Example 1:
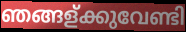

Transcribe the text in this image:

ഞങ്ങള്ക്കുവേണ്ടി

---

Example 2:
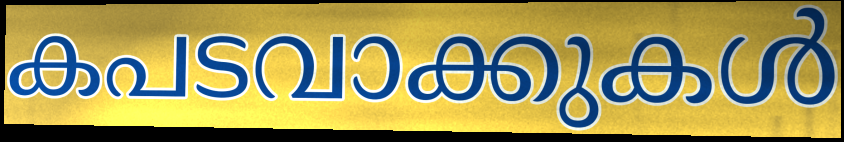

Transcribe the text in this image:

കപടവാക്കുകൾ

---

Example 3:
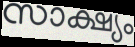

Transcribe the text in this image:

സാക്ഷ്യം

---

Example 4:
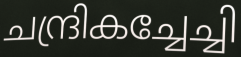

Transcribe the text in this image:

ചന്ദ്രികച്ചേച്ചി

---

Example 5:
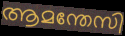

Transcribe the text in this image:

ആമന്തേസി